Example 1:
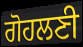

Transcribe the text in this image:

ਗੋਹਲਣੀ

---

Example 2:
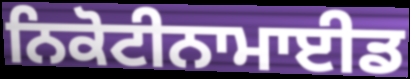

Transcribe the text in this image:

ਨਿਕੋਟੀਨਾਮਾਈਡ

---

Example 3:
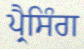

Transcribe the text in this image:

ਪ੍ਰੈਸਿੰਗ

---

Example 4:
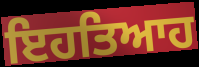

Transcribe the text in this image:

ਇਹਤਿਆਹ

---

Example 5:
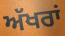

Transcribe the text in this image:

ਅੱਖਰਾਂ